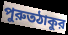
পুরুতঠাকুর